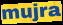
mujra